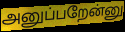
அனுப்பறேன்னு